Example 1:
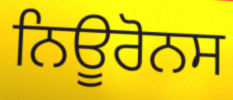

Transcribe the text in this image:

ਨਿਊਰੋਨਸ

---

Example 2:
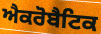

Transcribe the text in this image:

ਐਕਰੋਬੈਟਿਕ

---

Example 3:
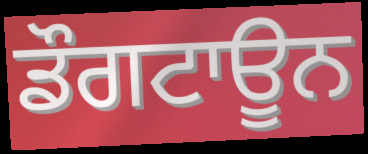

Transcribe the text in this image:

ਡੌਗਟਾਊਨ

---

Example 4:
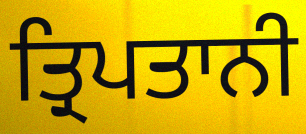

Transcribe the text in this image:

ਤ੍ਰਿਪਤਾਨੀ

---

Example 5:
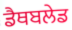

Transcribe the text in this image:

ਡੈਥਬਲੇਡ